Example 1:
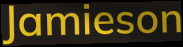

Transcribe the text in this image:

Jamieson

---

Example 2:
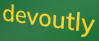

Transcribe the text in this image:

devoutly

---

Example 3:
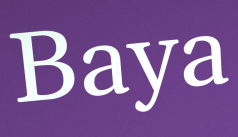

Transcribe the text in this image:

Baya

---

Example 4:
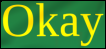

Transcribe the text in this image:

Okay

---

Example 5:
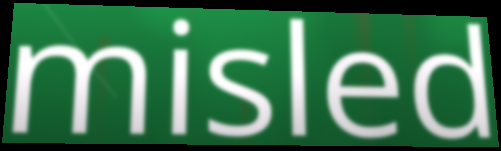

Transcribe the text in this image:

misled